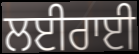
ਲਈਰਾਈ